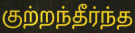
குற்றந்தீர்ந்த